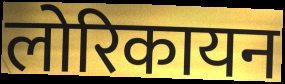
लोरिकायन